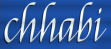
chhabi